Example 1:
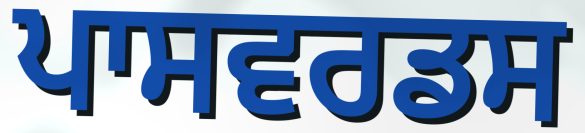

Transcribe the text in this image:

ਪਾਸਵਰਡਸ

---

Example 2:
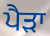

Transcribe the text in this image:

ਪੈੜਾ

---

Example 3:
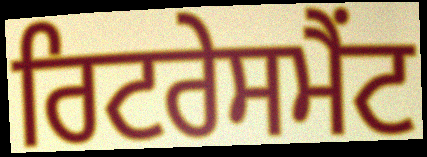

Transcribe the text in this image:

ਰਿਟਰੇਸਮੈਂਟ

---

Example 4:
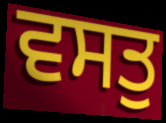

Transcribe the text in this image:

ਵਸਤੁ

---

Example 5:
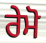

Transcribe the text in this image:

ਰੇਮੋ